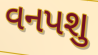
વનપશુ